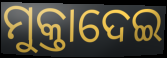
ମୁକ୍ତାଦେଇ